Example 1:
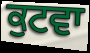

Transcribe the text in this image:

ਕੁਟਵਾ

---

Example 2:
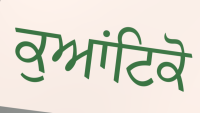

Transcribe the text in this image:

ਕੁਆਂਟਿਕੋ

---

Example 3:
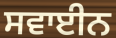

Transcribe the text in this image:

ਸਵਾਈਨ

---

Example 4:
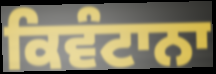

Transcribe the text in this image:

ਕਿਵੰਟਾਨਾ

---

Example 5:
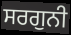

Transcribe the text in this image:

ਸਰਗੁਨੀ